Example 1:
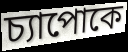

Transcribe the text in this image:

চ্যাপোকে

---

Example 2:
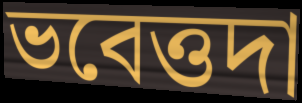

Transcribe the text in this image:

ভবেত্তদা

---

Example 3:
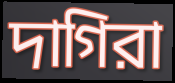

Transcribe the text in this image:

দাগিরা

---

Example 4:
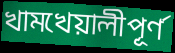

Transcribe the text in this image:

খামখেয়ালীপূর্ণ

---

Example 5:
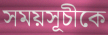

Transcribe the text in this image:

সময়সূচীকে